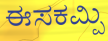
ಈಸಕಮ್ಪಿ